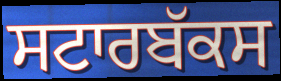
ਸਟਾਰਬੱਕਸ